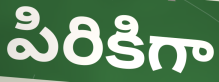
పిరికిగా